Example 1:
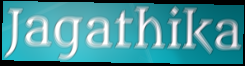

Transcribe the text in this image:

Jagathika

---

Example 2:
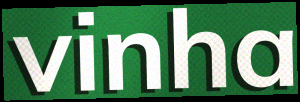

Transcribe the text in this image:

vinha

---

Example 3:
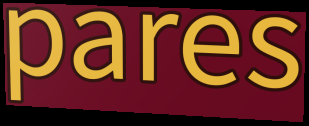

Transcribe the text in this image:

pares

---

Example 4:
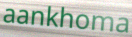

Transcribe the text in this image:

aankhoma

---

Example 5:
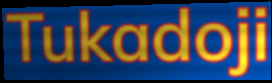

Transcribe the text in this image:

Tukadoji